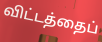
விட்டத்தைப்